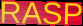
RASP